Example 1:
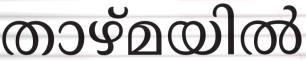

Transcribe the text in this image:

താഴ്മയിൽ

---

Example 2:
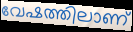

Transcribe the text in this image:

വേഷത്തിലാണ്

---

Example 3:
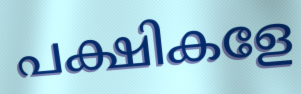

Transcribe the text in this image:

പക്ഷികളേ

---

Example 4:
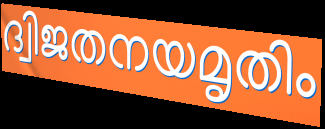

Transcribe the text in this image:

ദ്വിജതനയമൃതിം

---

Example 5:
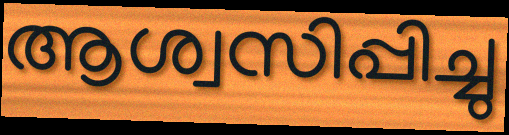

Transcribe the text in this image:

ആശ്വസിപ്പിച്ചു